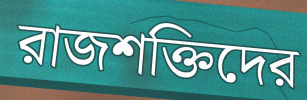
রাজশক্তিদের